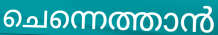
ചെന്നെത്താൻ